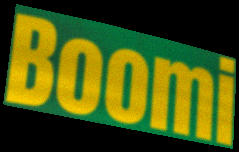
Boomi